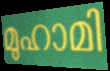
മുഹാമി